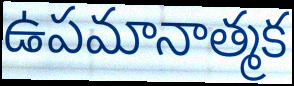
ఉపమానాత్మక